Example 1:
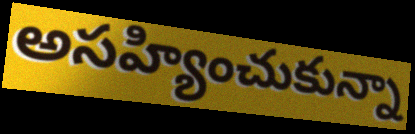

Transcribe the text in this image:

అసహ్యించుకున్నా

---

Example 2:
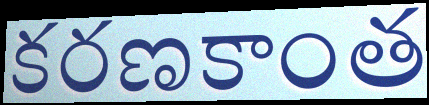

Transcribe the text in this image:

కరణకాంత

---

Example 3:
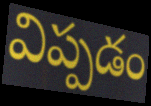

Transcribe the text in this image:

విప్పడం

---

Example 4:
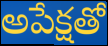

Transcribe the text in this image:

అపేక్షతో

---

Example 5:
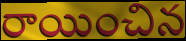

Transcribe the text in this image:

రాయించిన